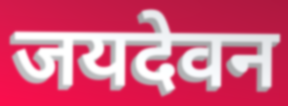
जयदेवन